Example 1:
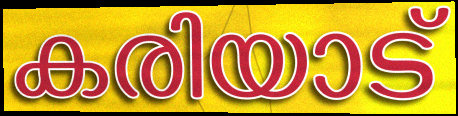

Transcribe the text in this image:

കരിയാട്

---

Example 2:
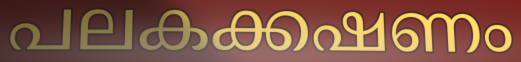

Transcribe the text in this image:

പലകക്കഷണം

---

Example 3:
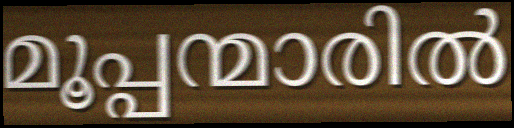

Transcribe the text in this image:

മൂപ്പന്മാരിൽ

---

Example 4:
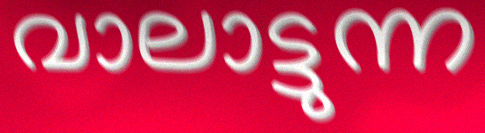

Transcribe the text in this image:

വാലാട്ടുന്ന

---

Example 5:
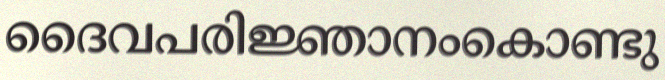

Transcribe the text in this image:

ദൈവപരിജ്ഞാനംകൊണ്ടു